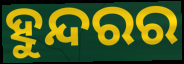
ହୁନ୍ଦରର